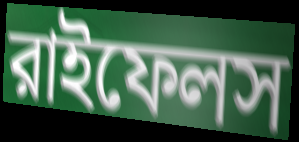
রাইফেলস